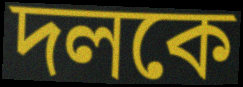
দলকে